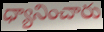
ధ్యానించారు